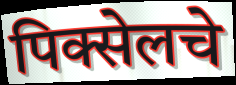
पिक्सेलचे